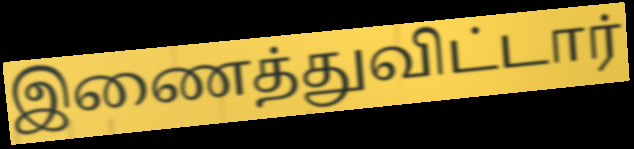
இணைத்துவிட்டார்